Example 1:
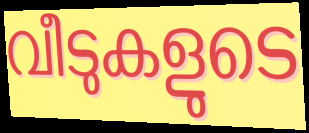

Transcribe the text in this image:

വീടുകളുടെ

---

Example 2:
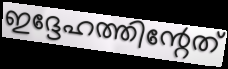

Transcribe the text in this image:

ഇദ്ദേഹത്തിന്റേത്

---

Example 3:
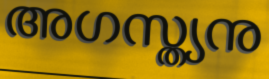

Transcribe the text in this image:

അഗസ്ത്യനു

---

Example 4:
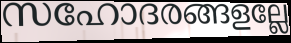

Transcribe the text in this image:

സഹോദരങ്ങളല്ലേ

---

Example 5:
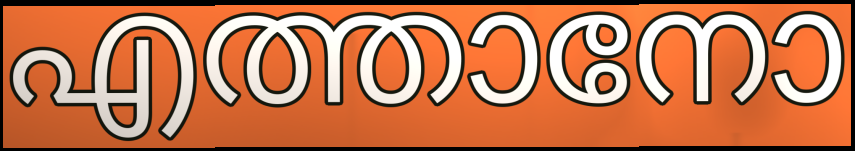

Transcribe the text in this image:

എത്താനോ